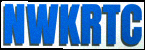
NWKRTC